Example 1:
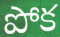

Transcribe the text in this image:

పోక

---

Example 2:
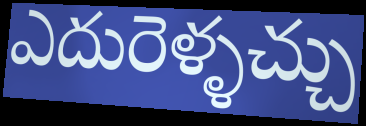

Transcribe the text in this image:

ఎదురెళ్ళచ్చు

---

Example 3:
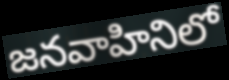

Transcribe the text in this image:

జనవాహినిలో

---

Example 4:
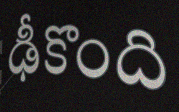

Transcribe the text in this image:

ఢీకొంది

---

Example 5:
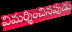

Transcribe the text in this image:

విమర్శించినపుడు